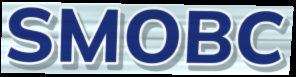
SMOBC